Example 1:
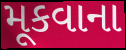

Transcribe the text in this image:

મૂકવાના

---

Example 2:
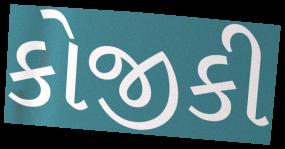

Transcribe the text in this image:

કોજીકી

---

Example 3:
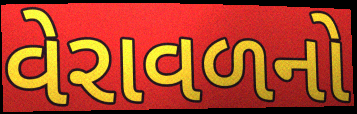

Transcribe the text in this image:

વેરાવળનો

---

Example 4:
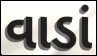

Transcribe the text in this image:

વાડાં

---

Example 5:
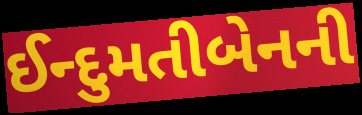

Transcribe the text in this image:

ઈન્દુમતીબેનની